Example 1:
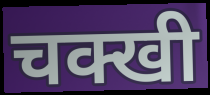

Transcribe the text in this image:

चक्खी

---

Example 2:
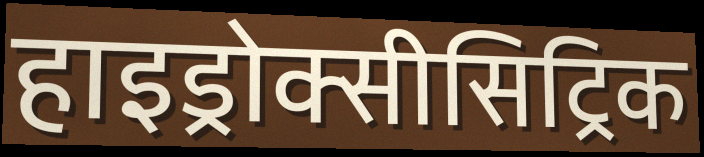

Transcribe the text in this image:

हाइड्रोक्सीसिट्रिक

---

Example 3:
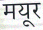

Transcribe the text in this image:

मयूर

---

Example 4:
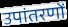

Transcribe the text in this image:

उपांतरणों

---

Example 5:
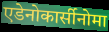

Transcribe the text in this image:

एडेनोकार्सीनोमा